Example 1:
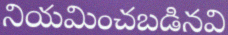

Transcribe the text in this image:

నియమించబడినవి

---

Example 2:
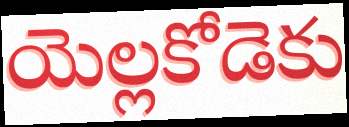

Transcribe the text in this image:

యెల్లకోడెకు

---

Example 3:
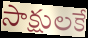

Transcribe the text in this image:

సాక్షులకే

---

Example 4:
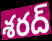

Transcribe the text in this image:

శరద్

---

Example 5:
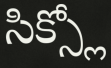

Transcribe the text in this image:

సిక్స్లో